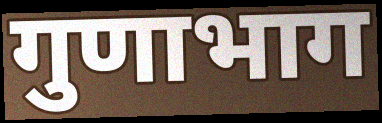
गुणाभाग